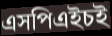
এসপিএইচই